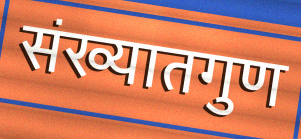
संख्यातगुण